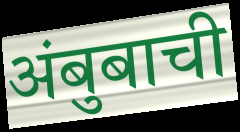
अंबुबाची